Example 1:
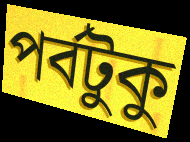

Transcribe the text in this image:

পর্বটুকু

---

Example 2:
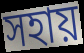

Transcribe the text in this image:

সহায়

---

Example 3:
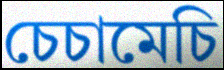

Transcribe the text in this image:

চেচামেচি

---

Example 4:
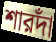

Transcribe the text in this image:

শারদাঁ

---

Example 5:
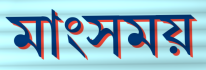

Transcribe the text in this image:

মাংসময়